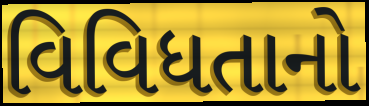
વિવિધતાનો